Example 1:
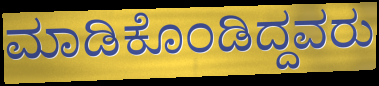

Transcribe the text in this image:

ಮಾಡಿಕೊಂಡಿದ್ದವರು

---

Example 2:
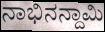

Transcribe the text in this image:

ನಾಭಿನನ್ದಾಮಿ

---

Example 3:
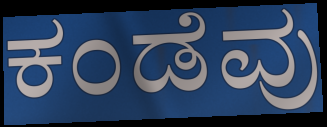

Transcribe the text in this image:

ಕಂಡೆವು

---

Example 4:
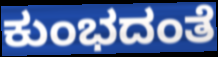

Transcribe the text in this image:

ಕುಂಭದಂತೆ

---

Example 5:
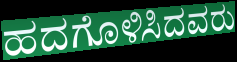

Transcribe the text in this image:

ಹದಗೊಳಿಸಿದವರು